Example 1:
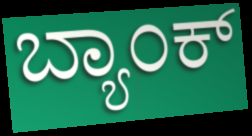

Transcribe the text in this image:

ಬ್ಯಾಂಕ್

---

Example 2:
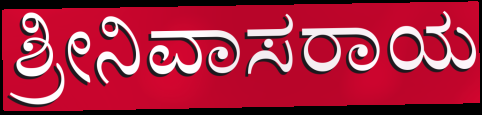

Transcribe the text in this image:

ಶ್ರೀನಿವಾಸರಾಯ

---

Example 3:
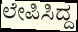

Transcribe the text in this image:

ಲೇಪಿಸಿದ್ದ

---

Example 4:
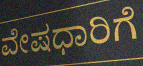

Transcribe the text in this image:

ವೇಷಧಾರಿಗೆ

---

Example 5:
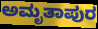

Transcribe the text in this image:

ಅಮೃತಾಪುರ